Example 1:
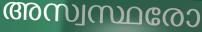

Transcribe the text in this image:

അസ്വസ്ഥരോ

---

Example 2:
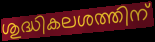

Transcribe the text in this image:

ശുദ്ധികലശത്തിന്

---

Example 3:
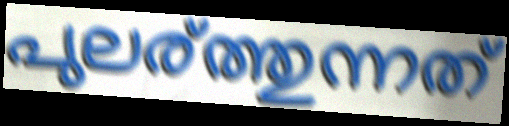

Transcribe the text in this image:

പുലര്ത്തുന്നത്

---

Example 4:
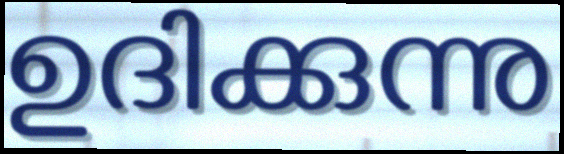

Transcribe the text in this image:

ഉദിക്കുന്നു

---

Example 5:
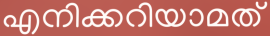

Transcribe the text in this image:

എനിക്കറിയാമത്